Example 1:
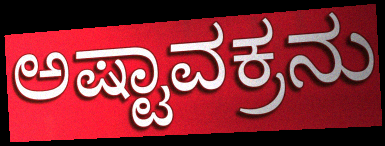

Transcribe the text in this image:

ಅಷ್ಟಾವಕ್ರನು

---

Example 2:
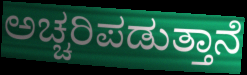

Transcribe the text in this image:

ಅಚ್ಚರಿಪಡುತ್ತಾನೆ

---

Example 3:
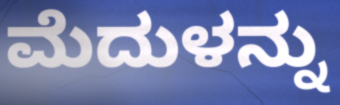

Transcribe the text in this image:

ಮೆದುಳನ್ನು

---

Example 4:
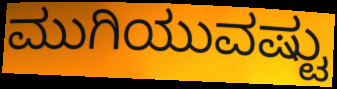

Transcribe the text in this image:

ಮುಗಿಯುವಷ್ಟು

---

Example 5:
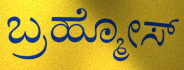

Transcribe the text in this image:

ಬ್ರಹ್ಮೋಸ್